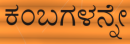
ಕಂಬಗಳನ್ನೇ